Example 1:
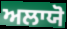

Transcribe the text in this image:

ਅਲਾਯੋ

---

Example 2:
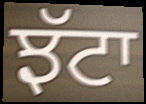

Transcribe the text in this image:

ਝੱਟਾ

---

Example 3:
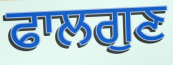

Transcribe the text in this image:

ਫਾਲਗੁਣ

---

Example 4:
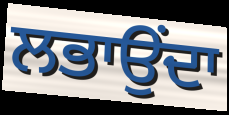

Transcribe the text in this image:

ਲਭਾਉਂਦਾ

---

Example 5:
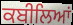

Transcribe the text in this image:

ਕਬੀਲਿਆਂ